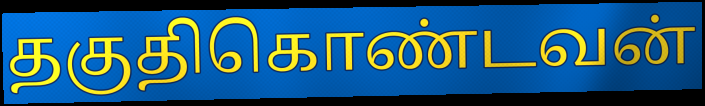
தகுதிகொண்டவன்